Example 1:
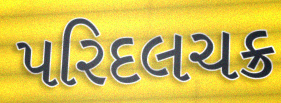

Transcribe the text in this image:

પરિદલચક્ર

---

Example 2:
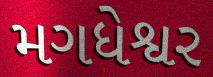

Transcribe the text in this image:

મગધેશ્વર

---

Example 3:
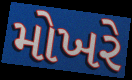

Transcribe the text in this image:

મોખરે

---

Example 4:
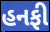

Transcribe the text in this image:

હનફી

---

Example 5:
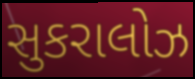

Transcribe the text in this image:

સુકરાલોઝ